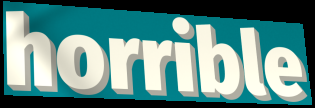
horrible